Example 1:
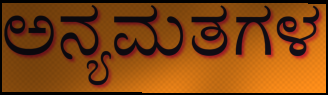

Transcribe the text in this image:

ಅನ್ಯಮತಗಳ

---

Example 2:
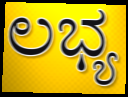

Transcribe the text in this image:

ಲಭ್ಯ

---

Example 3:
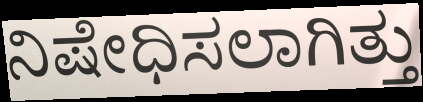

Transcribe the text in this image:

ನಿಷೇಧಿಸಲಾಗಿತ್ತು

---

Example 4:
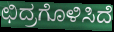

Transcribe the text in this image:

ಛಿದ್ರಗೊಳಿಸಿದೆ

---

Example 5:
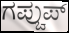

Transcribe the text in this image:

ಗಪ್ಚುಪ್